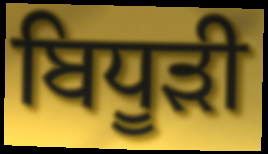
ਬਿਧੂੜੀ